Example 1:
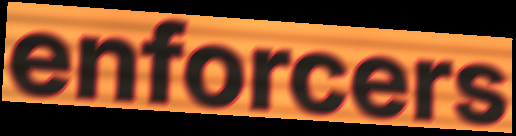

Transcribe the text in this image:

enforcers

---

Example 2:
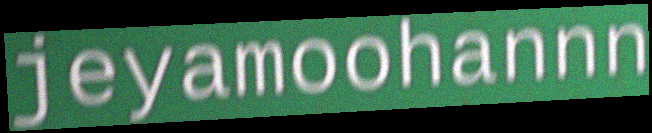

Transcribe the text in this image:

jeyamoohannn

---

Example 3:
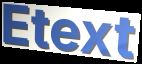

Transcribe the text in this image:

Etext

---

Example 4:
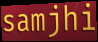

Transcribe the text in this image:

samjhi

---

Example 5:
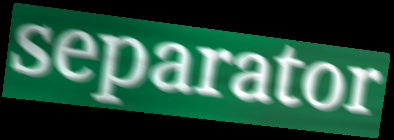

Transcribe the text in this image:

separator